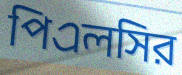
পিএলসির